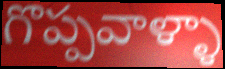
గొప్పవాళ్ళా